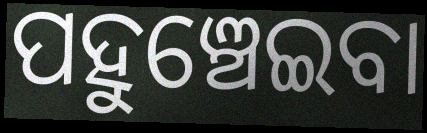
ପହୁଞ୍ଚେଇବା